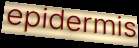
epidermis